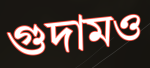
গুদামও